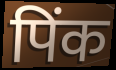
पिंक